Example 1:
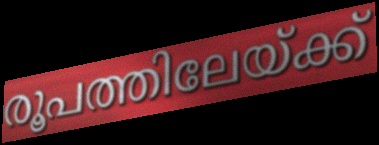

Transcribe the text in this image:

രൂപത്തിലേയ്ക്ക്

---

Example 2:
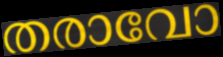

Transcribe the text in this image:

തരാവോ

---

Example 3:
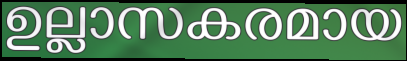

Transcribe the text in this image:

ഉല്ലാസകരമായ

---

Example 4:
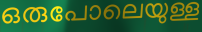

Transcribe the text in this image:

ഒരുപോലെയുള്ള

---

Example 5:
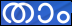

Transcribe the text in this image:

താം